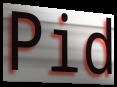
Pid